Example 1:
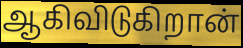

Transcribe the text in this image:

ஆகிவிடுகிறான்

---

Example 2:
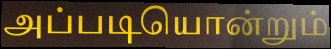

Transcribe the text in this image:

அப்படியொன்றும்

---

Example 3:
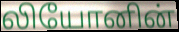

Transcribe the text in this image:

லியோனின்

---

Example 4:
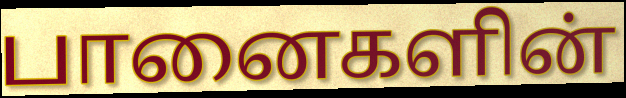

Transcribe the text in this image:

பானைகளின்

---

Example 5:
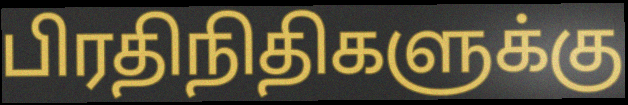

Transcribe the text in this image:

பிரதிநிதிகளுக்கு